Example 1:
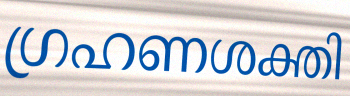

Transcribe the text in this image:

ഗ്രഹണശക്തി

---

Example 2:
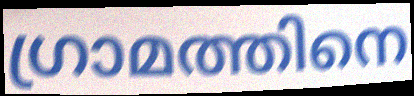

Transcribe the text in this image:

ഗ്രാമത്തിനെ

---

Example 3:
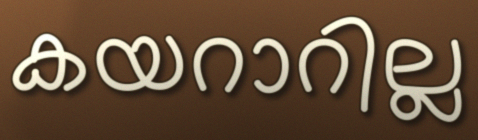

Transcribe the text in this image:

കയറാറില്ല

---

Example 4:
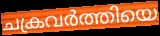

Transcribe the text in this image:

ചക്രവർത്തിയെ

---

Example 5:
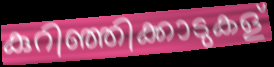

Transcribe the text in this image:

കുറിഞ്ഞിക്കാടുകള്